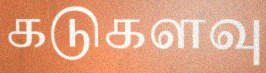
கடுகளவு